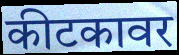
कीटकावर